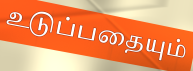
உடுப்பதையும்